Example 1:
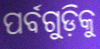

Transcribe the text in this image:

ପର୍ବଗୁଡ଼ିକୁ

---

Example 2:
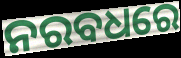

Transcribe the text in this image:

ନରବଧରେ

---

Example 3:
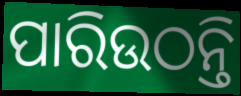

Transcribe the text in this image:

ପାରିଉଠନ୍ତି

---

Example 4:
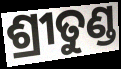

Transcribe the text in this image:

ଶ୍ରୀତୁଣ୍ଡ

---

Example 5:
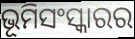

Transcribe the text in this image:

ଭୂମିସଂସ୍କାରର